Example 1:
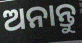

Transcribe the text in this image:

ଅନାନ୍ତୁ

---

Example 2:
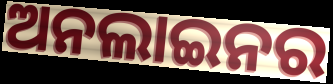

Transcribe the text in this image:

ଅନଲାଇନର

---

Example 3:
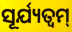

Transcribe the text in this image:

ସୂର୍ଯ୍ୟତ୍ୱମ୍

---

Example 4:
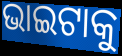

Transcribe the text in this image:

ଭାଇଟାକୁ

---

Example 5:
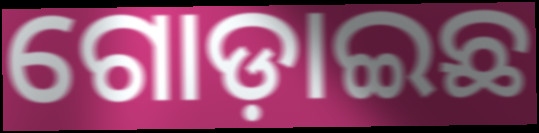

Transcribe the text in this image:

ଗୋଡ଼ାଇଛ